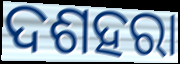
ଦଶହରା